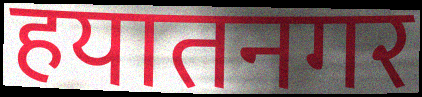
हयातनगर